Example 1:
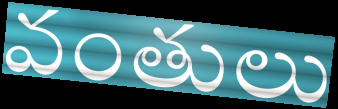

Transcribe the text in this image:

వంతులు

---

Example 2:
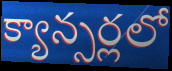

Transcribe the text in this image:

క్యాన్సర్లలో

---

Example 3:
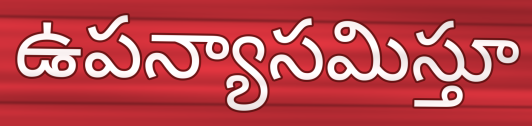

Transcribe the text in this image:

ఉపన్యాసమిస్తూ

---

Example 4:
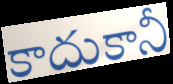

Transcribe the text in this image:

కాదుకానీ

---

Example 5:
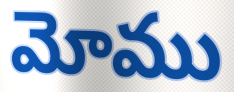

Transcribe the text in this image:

మోము